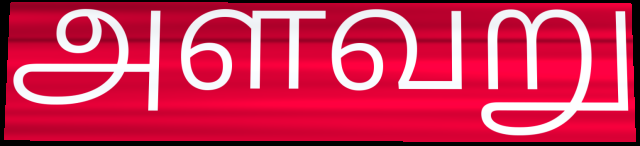
அளவறு